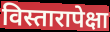
विस्तारापेक्षा